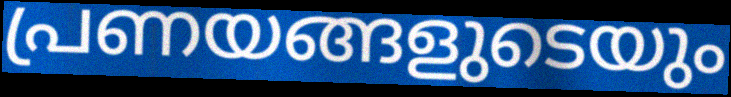
പ്രണയങ്ങളുടെയും